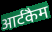
आर्टकैम